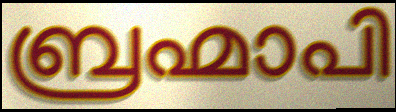
ബ്രഹ്മാപി